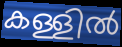
കള്ളിൽ